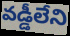
వడ్డీలేని